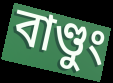
বাণ্ডুং